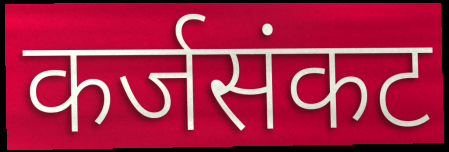
कर्जसंकट